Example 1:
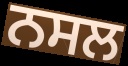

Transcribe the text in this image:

ਨਸਲ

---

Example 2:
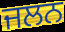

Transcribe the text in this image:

ਜਲਨ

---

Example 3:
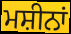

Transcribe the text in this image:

ਮਸ਼ੀਨਾਂ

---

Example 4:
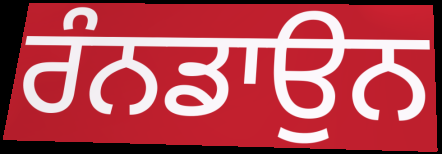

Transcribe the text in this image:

ਰੰਨਡਾਉਨ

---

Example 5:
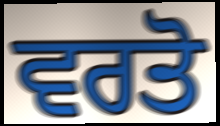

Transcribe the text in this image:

ਵਰਤੋ